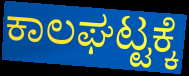
ಕಾಲಘಟ್ಟಕ್ಕೆ